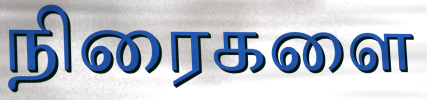
நிரைகளை